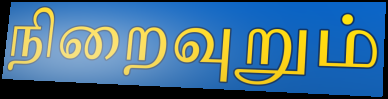
நிறைவுறும்